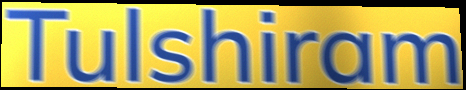
Tulshiram